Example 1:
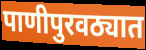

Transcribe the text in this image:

पाणीपुरवठ्यात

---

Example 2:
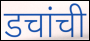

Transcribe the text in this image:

डचांची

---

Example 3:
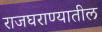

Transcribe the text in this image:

राजघराण्यातील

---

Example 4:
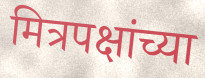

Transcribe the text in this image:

मित्रपक्षांच्या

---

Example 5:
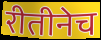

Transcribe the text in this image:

रीतीनेच